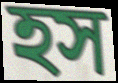
হস